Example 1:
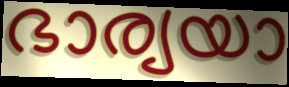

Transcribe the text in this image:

ഭാര്യയാ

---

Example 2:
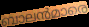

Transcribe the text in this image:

ബാലൻമാരെ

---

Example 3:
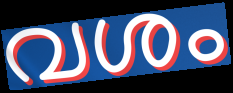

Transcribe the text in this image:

വശം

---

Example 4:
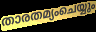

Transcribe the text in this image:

താരതമ്യംചെയ്യും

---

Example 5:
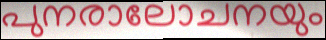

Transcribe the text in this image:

പുനരാലോചനയും